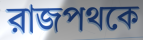
রাজপথকে